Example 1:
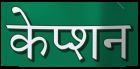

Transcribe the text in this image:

केप्शन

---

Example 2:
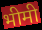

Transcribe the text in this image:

भीमी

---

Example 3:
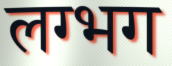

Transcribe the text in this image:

लग्भग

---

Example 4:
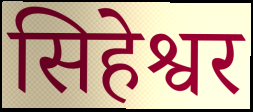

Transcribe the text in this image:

सिहेश्वर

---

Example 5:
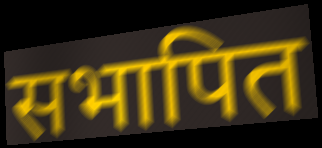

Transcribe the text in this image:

सभापित